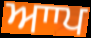
ਆਾਪ